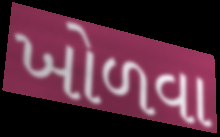
ખોળવા